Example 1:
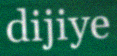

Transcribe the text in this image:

dijiye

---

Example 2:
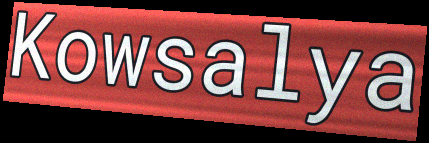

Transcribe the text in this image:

Kowsalya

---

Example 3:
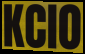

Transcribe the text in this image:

KCIO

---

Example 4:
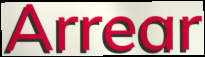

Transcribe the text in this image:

Arrear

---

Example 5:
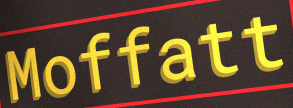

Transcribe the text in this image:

Moffatt